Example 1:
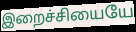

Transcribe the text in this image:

இறைச்சியையே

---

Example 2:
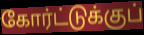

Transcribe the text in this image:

கோர்ட்டுக்குப்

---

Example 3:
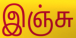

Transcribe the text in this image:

இஞ்சு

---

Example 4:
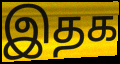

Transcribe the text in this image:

இதக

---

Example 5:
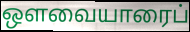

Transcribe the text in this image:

ஔவையாரைப்